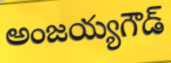
అంజయ్యగౌడ్